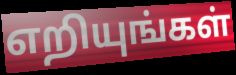
எறியுங்கள்